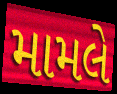
મામલે